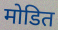
मोडित